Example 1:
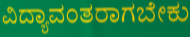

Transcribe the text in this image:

ವಿದ್ಯಾವಂತರಾಗಬೇಕು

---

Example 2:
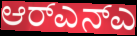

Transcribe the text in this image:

ಆರ್‌ಎನ್ಎ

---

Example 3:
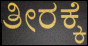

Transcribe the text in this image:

ತೀರಕ್ಕೆ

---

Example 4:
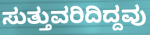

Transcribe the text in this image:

ಸುತ್ತುವರಿದಿದ್ದವು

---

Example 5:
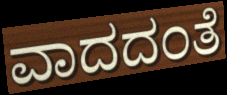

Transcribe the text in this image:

ವಾದದಂತೆ